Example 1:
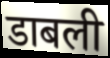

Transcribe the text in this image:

डाबली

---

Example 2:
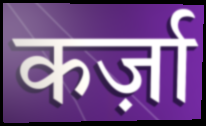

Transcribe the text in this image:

कर्ज़ा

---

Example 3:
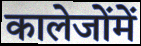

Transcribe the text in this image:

कालेजोंमें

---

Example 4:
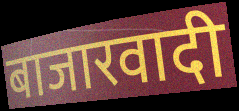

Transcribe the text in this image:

बाजारवादी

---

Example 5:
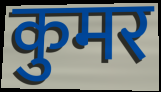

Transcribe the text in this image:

कुमर